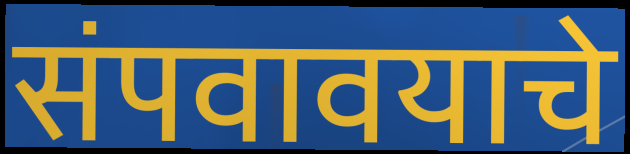
संपवावयाचे